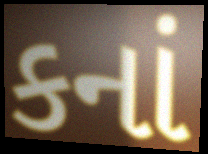
કનાં